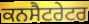
ਕਨਸੈਟਰੇਟਰ